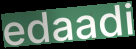
edaadi